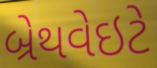
બ્રેથવેઇટે